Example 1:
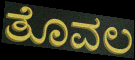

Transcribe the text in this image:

ತೊವಲ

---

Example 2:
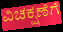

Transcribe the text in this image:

ವಿಚಕ್ಷಣೆಗೆ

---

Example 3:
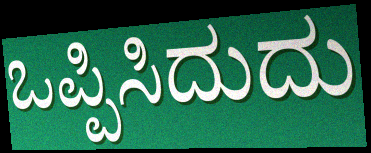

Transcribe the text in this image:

ಒಪ್ಪಿಸಿದುದು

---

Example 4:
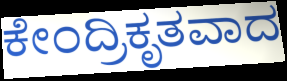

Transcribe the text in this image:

ಕೇಂದ್ರಿಕೃತವಾದ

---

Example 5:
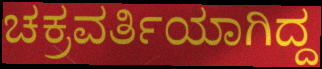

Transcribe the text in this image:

ಚಕ್ರವರ್ತಿಯಾಗಿದ್ದ